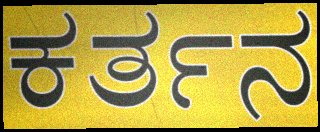
ಕರ್ತನ